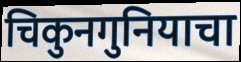
चिकुनगुनियाचा